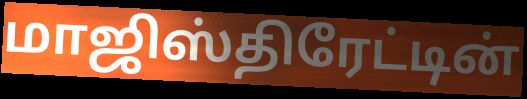
மாஜிஸ்திரேட்டின்